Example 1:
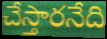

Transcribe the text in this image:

చేస్తారనేది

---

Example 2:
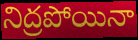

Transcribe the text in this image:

నిద్రపోయినా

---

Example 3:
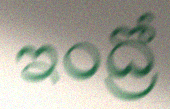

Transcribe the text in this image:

ఇంద్రో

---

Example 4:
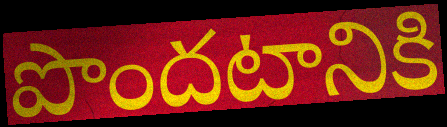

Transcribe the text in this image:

పొందటానికి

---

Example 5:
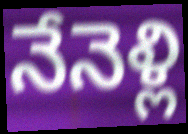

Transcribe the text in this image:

నేనెళ్లి